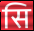
सि